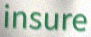
insure